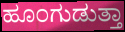
ಹೂಂಗುಡುತ್ತಾ